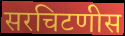
सरचिटणीस